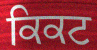
ਕਿਕਟ